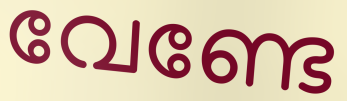
വേണ്ടേ